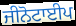
ਜੀਨੋਟਾਈਪ